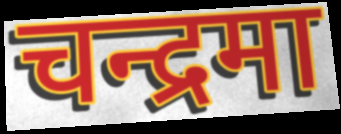
चन्द्रमा